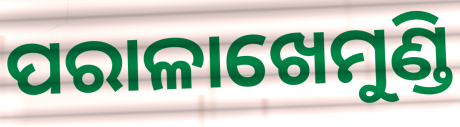
ପରାଳାଖେମୁଣ୍ଡି